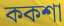
ককশা